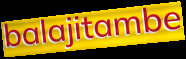
balajitambe